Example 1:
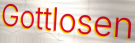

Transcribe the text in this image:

Gottlosen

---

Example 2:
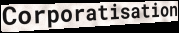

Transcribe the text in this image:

Corporatisation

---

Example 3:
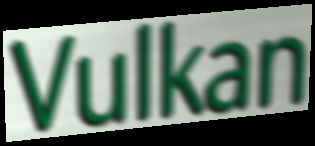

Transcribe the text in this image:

Vulkan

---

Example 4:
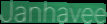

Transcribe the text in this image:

Janhavee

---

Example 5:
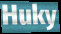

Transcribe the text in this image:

Huky